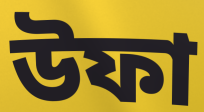
উফা